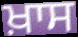
ਖ਼ਾਸ